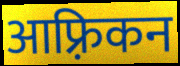
आफ़्रिकन